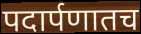
पदार्पणातच